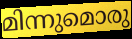
മിന്നുമൊരു